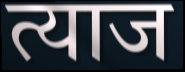
त्याज